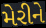
મેરીને